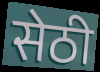
सेठी